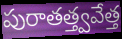
పురాతత్త్వవేత్త